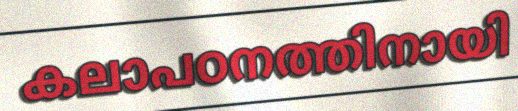
കലാപഠനത്തിനായി